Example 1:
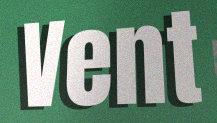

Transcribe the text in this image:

Vent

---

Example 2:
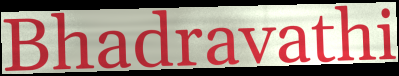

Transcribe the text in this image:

Bhadravathi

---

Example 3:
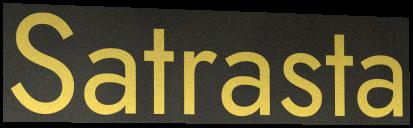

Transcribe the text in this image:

Satrasta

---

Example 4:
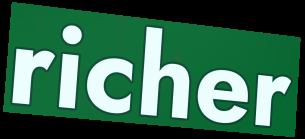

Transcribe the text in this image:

richer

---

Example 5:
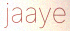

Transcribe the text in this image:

jaaye